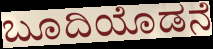
ಬೂದಿಯೊಡನೆ